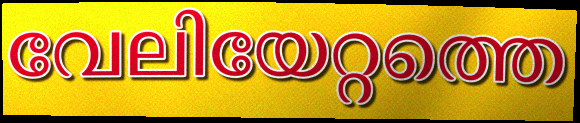
വേലിയേറ്റത്തെ